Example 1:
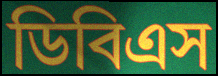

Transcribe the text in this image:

ডিবিএস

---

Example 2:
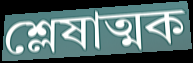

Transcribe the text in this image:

শ্লেষাত্মক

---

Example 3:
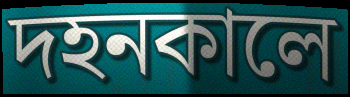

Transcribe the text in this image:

দহনকালে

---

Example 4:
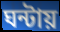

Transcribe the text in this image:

ঘন্টায়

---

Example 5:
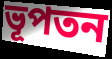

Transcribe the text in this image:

ভূপতন